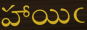
హాయిఁ